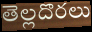
తెల్లదొరలు